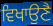
ਵਿਖਾਉਣੈ